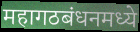
महागठबंधनमध्ये